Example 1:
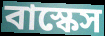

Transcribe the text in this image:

বাস্কেস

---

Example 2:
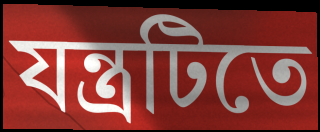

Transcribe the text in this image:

যন্ত্রটিতে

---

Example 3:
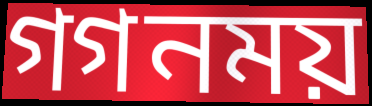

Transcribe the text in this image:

গগনময়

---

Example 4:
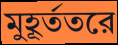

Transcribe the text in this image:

মুহূর্ততরে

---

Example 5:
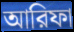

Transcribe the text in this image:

আরিফা